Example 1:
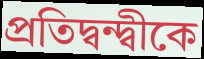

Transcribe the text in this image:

প্রতিদ্বন্দ্বীকে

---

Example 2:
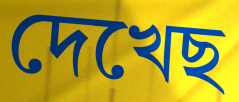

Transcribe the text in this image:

দেখেছ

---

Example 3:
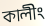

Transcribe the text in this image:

কালীং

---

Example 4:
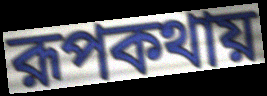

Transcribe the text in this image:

রূপকথায়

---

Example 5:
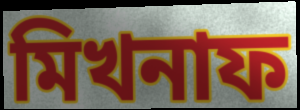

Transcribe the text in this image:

মিখনাফ